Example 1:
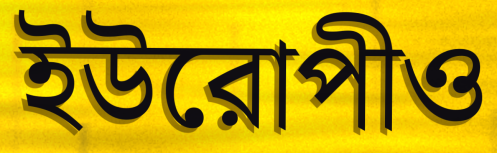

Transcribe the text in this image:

ইউরোপীও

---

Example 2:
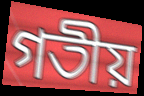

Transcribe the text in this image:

গতীয়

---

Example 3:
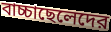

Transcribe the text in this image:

বাচ্চাছেলেদের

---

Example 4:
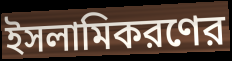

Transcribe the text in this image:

ইসলামিকরণের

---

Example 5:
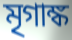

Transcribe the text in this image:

মৃগাঙ্ক